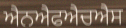
ਐਨਐਫਐਚਐਸ